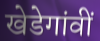
खेडेगांवीं